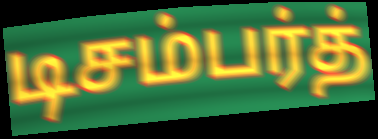
டிசம்பர்த்